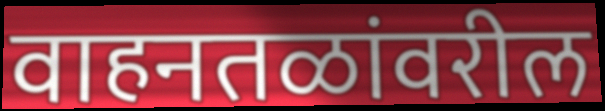
वाहनतळांवरील